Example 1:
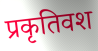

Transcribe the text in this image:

प्रकृतिवश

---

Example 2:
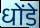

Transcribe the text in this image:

धोंडे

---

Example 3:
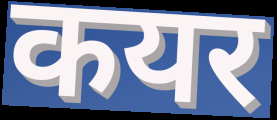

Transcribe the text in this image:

कयर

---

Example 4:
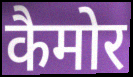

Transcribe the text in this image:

कैमोर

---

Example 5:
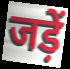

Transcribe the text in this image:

जड़ें